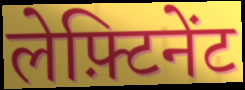
लेफ़्टिनेंट